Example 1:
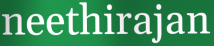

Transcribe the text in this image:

neethirajan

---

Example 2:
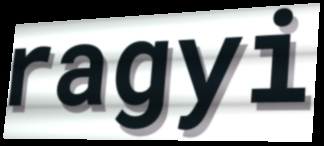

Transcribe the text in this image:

ragyi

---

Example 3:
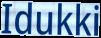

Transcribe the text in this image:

Idukki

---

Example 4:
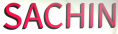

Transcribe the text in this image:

SACHIN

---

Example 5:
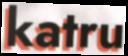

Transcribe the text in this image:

katru